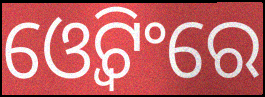
ଓ୍ୱେଟିଂରେ